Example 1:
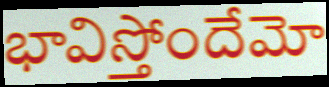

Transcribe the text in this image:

భావిస్తోందేమో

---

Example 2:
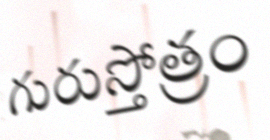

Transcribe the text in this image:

గురుస్తోత్రం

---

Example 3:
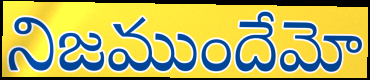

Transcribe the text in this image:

నిజముందేమో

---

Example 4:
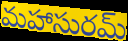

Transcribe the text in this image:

మహాసురమ్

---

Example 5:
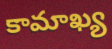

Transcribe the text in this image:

కామాఖ్య